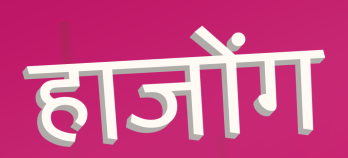
हाजोंग